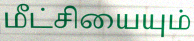
மீட்சியையும்